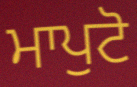
ਮਾਪੁਟੋ